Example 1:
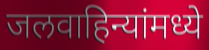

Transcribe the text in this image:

जलवाहिन्यांमध्ये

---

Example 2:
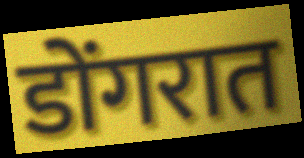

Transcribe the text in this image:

डोंगरात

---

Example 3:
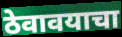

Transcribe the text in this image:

ठेवावयाचा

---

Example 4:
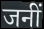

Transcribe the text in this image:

जनीं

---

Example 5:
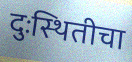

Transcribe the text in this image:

दुःस्थितीचा